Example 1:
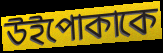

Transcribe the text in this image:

উইপোকাকে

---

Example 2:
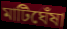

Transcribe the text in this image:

মাটিঘেঁষা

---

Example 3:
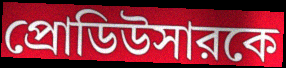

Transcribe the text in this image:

প্রোডিউসারকে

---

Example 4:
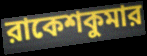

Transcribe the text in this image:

রাকেশকুমার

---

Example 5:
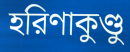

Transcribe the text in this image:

হরিণাকুণ্ডু